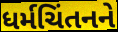
ધર્મચિંતનને